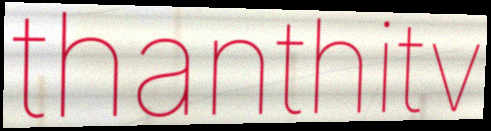
thanthitv